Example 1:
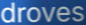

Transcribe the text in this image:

droves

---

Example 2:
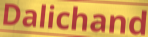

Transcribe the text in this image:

Dalichand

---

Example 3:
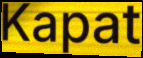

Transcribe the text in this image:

Kapat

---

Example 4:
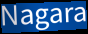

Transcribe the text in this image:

Nagara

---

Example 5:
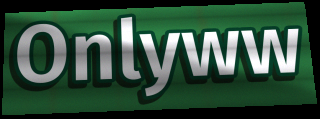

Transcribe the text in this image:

Onlyww